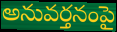
అనువర్తనంపై